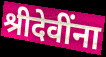
श्रीदेवींना